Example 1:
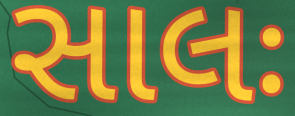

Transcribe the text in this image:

સાલઃ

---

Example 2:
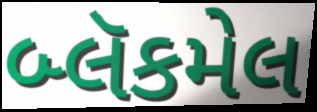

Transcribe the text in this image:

બ્લૅકમેલ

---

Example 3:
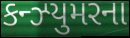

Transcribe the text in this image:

કન્ઝ્યુમરના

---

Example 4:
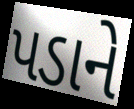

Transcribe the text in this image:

પડાને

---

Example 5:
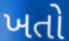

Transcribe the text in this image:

ખતો